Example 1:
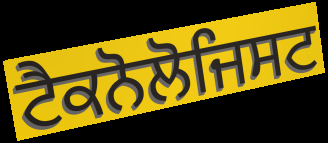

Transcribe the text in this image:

ਟੈਕਨੋਲੋਜਿਸਟ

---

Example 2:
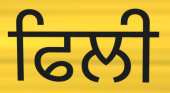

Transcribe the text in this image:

ਫਿਲੀ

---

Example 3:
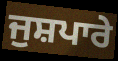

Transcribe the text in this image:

ਜੁਸ਼ਪਾਰੇ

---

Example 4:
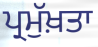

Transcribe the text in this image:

ਪ੍ਰਮੁੱਖ਼ਤਾ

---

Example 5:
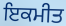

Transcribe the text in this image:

ਇਕਮੀਤ